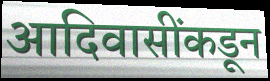
आदिवासींकडून